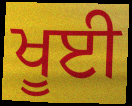
ਖੂਈ